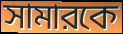
সামারকে